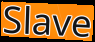
Slave